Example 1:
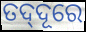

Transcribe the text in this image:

ତଦ୍‍ଦୂରେ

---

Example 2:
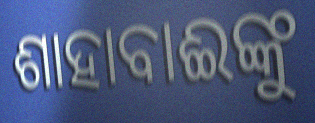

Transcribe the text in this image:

ଶାହାବାଈଙ୍କୁ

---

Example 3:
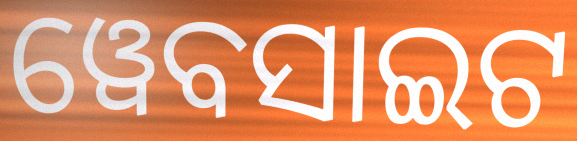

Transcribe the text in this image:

ୱେବସାଇଟ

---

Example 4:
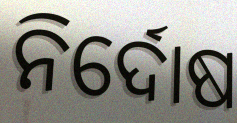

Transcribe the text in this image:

ନିର୍ଦୋଷ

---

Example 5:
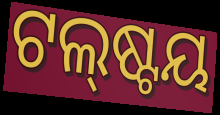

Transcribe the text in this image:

ଟଲ୍‌ଷ୍ଟୟ